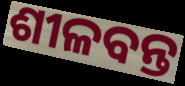
ଶୀଳବନ୍ତ